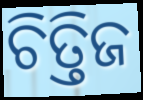
ଚିତ୍ତିଜ